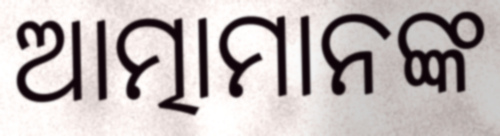
ଆତ୍ମାମାନଙ୍କ